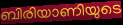
ബിരിയാണിയുടെ